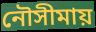
নৌসীমায়